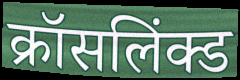
क्रॉसलिंक्ड